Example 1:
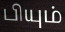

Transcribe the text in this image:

பியும்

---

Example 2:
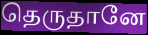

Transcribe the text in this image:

தெருதானே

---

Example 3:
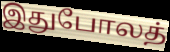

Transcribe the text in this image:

இதுபோலத்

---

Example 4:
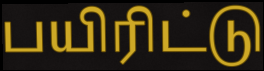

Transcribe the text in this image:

பயிரிட்டு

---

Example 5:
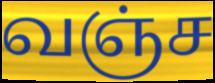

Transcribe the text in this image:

வஞ்ச